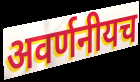
अवर्णनीयच